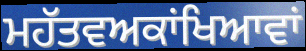
ਮਹੱਤਵਅਕਾਂਖਿਆਵਾਂ